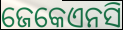
ଜେକେଏନସି